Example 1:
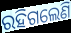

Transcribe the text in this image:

ରହିଗଲେଣି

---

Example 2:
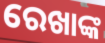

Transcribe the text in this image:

ରେଖାଙ୍କ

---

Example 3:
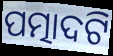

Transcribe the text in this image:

ପତ୍ମାଦଟି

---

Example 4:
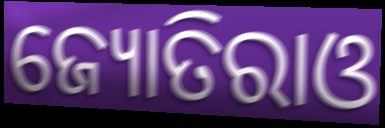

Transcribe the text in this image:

ଜ୍ୟୋତିରାଓ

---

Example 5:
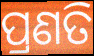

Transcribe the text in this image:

ପ୍ରଣତି